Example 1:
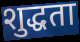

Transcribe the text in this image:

शुद्धता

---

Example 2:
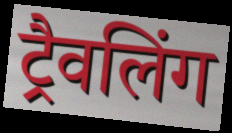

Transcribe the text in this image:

ट्रैवलिंग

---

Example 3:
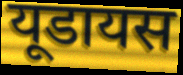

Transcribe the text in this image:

यूडायस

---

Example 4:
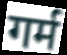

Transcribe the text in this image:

गर्म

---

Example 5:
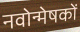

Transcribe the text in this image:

नवोन्मेषकों